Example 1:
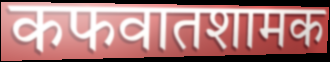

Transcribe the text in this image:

कफवातशामक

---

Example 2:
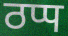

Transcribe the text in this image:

ठप्प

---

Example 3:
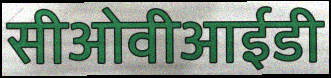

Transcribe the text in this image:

सीओवीआईडी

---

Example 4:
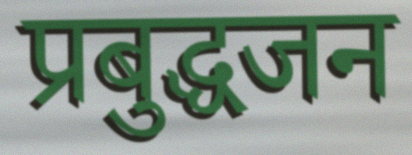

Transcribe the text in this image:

प्रबुद्धजन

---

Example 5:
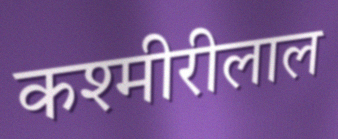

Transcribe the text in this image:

कश्मीरीलाल